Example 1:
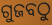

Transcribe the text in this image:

ଗୁଜବଠୁ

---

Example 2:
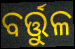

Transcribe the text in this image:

ବର୍ତ୍ତୁଳ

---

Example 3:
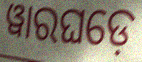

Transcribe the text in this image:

ୱାରଘଡ଼େ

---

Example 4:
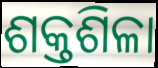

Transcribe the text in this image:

ଶକ୍ତଶିଳା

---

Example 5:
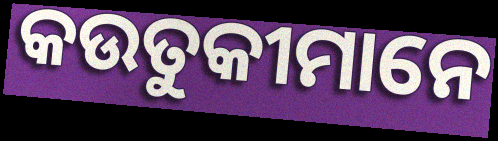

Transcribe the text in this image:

କଉତୁକୀମାନେ